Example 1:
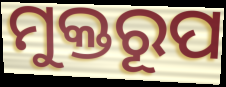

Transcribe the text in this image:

ମୁକ୍ତରୂପ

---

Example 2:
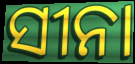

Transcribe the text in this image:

ସୀନା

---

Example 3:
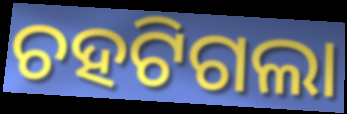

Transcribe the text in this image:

ଚହଟିଗଲା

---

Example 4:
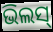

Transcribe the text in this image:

ଭିଲସ୍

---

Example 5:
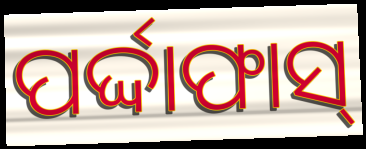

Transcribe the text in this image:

ପର୍ଦ୍ଦାଫାସ୍